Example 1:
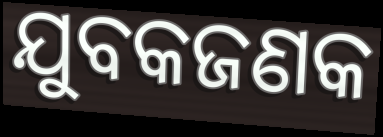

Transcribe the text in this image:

ଯୁବକଜଣକ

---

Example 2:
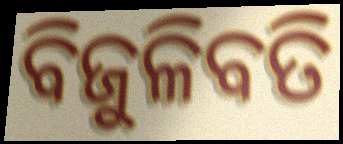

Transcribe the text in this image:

ବିଜୁଳିବତି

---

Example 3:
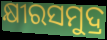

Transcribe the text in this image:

କ୍ଷୀରସମୁଦ୍ର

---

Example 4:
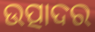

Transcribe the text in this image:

ଉତ୍ପାଦର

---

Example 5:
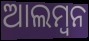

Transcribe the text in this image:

ଆଲମ୍ୱନ